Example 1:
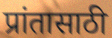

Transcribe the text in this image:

प्रांतासाठी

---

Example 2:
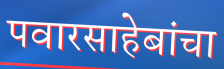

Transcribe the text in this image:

पवारसाहेबांचा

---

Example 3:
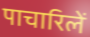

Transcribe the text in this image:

पाचारिलें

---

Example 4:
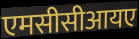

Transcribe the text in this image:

एमसीसीआयए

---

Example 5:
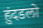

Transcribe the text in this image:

हुंदडलो